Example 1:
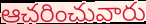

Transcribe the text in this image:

ఆచరించువారు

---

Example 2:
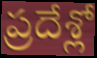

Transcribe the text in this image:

ప్రదేశ్లో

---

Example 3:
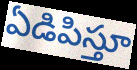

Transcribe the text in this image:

ఏడిపిస్తూ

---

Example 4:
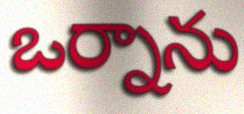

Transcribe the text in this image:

ఒర్నాను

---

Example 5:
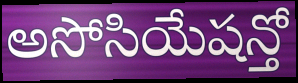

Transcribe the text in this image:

అసోసియేషన్తో